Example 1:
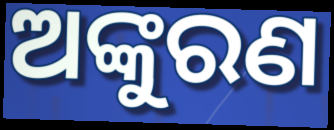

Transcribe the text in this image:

ଅଙ୍କୁରଣ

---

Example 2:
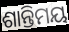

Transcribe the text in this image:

ଶାନ୍ତିମୟ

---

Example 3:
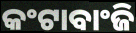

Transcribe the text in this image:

କଂଟାବାଂଜି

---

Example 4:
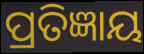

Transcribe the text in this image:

ପ୍ରତିଜ୍ଞାୟ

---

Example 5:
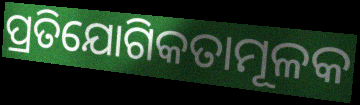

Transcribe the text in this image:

ପ୍ରତିଯୋଗିକତାମୂଳକ